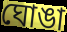
ঘোঙা